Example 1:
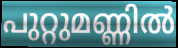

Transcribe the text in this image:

പുറ്റുമണ്ണിൽ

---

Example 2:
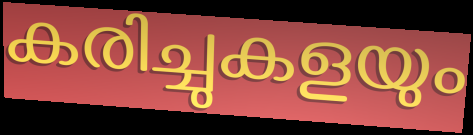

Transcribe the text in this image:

കരിച്ചുകളയും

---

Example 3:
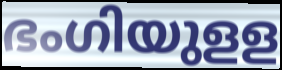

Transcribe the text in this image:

ഭംഗിയുളള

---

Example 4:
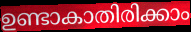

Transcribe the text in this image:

ഉണ്ടാകാതിരിക്കാം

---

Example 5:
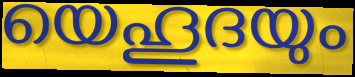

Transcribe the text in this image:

യെഹൂദയും